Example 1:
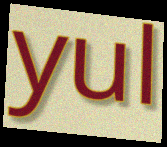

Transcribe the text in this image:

yul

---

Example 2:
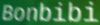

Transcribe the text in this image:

Bonbibi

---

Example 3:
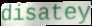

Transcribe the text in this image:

disatey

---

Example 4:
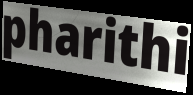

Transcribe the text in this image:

pharithi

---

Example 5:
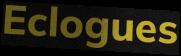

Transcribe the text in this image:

Eclogues